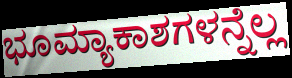
ಭೂಮ್ಯಾಕಾಶಗಳನ್ನೆಲ್ಲ